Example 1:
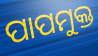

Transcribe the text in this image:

ପାପମୁକ୍ତ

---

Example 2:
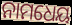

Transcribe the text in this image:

ନାମଧେୟ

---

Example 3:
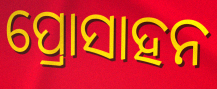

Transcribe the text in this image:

ପ୍ରୋସାହନ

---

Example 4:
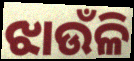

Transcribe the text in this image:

ଝାଉଁଳି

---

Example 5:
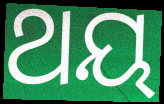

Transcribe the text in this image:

ଥୟ